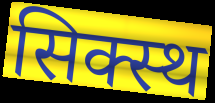
सिक्स्थ